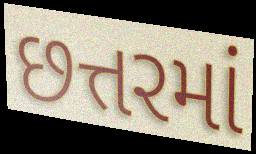
છત્તરમાં